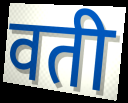
वती